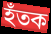
হঁতক